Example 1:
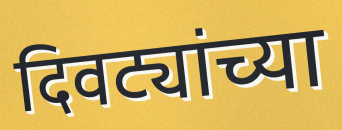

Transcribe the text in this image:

दिवट्यांच्या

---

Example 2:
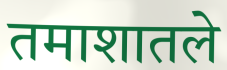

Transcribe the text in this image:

तमाशातले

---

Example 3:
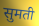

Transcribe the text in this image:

सुमती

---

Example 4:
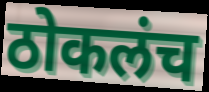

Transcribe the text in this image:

ठोकलंच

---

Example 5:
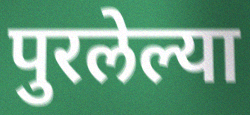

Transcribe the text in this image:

पुरलेल्या